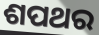
ଶପଥର